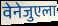
वेनेजुएला